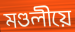
মণ্ডলীয়ে